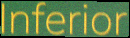
Inferior